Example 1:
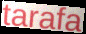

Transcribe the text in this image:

tarafa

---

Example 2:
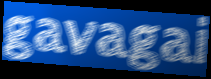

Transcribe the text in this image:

gavagai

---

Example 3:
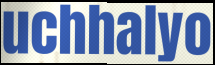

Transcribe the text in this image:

uchhalyo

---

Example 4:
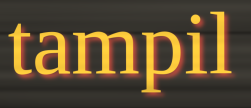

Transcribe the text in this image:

tampil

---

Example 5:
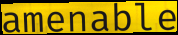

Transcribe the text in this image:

amenable